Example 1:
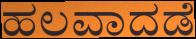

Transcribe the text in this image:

ಹಲವಾದಡೆ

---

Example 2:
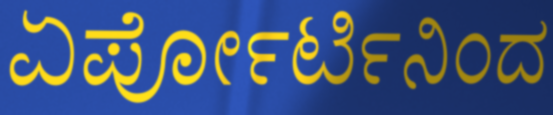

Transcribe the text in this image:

ಏರ್ಪೋರ್ಟಿನಿಂದ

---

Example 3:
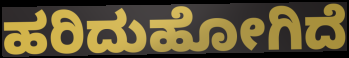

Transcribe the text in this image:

ಹರಿದುಹೋಗಿದೆ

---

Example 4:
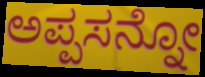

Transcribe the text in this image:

ಅಪ್ಪಸನ್ನೋ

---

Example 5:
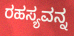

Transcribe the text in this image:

ರಹಸ್ಯವನ್ನ